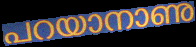
പറയാനാണു